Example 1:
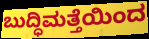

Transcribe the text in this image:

ಬುದ್ಧಿಮತ್ತೆಯಿಂದ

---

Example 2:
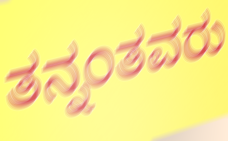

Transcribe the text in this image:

ತನ್ನಂತವರು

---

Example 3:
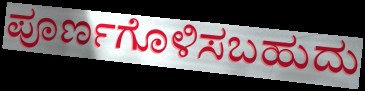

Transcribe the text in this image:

ಪೂರ್ಣಗೊಳಿಸಬಹುದು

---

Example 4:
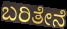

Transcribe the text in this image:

ಬರಿತೇನೆ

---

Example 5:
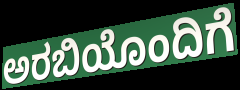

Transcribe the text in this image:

ಅರಬಿಯೊಂದಿಗೆ